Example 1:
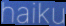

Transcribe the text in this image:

haiku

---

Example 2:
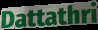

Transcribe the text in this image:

Dattathri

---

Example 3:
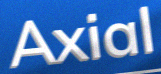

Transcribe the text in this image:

Axial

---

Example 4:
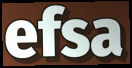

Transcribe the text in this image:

efsa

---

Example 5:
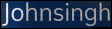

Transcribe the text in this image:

Johnsingh